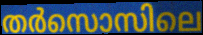
തർസൊസിലെ